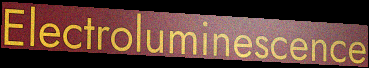
Electroluminescence